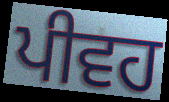
ਪੀਵਹ